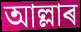
আল্লাৰ